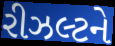
રીઝલ્ટને